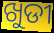
ଖୁଡୀ